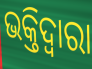
ଭକ୍ତିଦ୍ଵାରା